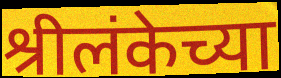
श्रीलंकेच्या